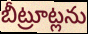
బీట్రూట్లను